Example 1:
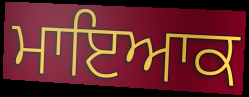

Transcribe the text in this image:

ਮਾਇਆਕ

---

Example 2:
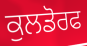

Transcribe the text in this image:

ਕੁਲਡੋਰਫ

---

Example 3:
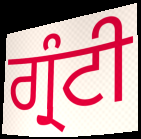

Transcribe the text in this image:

ਗ੍ਰੰਟੀ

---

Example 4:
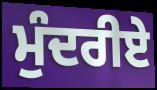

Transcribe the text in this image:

ਮੁੰਦਰੀਏ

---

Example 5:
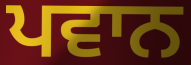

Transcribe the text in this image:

ਪਵਾਨ